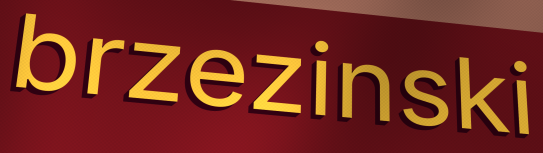
brzezinski